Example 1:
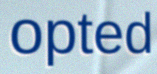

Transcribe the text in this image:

opted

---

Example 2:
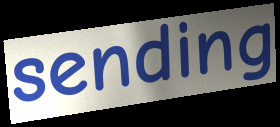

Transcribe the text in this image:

sending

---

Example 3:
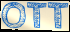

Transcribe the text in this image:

OTT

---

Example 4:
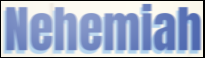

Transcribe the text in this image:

Nehemiah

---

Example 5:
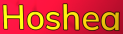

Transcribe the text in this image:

Hoshea